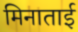
मिनाताई